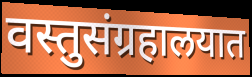
वस्तुसंग्रहालयात